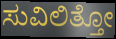
ಸುವಿಲಿತ್ತೋ